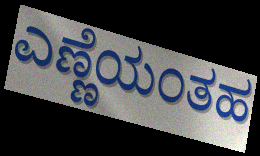
ಎಣ್ಣೆಯಂತಹ